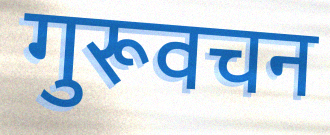
गुरूवचन